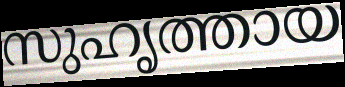
സുഹൃത്തായ